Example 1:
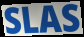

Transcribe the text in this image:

SLAS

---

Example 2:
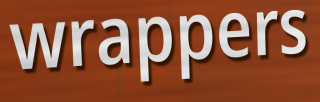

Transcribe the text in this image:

wrappers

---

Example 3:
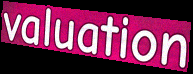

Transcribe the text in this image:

valuation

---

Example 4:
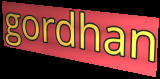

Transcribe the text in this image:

gordhan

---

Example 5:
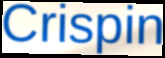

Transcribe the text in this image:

Crispin